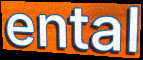
ental